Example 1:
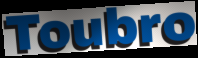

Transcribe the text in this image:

Toubro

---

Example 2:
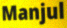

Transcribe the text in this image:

Manjul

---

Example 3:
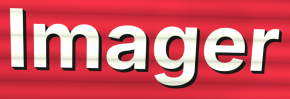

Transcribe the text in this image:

Imager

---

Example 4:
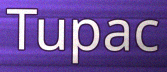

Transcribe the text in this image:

Tupac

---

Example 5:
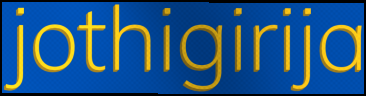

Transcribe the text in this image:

jothigirija